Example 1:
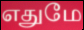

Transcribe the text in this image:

எதுமே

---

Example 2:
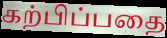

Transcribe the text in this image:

கற்பிப்பதை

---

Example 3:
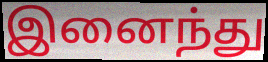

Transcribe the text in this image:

இனைந்து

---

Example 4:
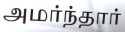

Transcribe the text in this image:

அமர்ந்தார்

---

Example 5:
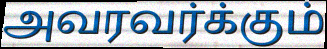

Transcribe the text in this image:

அவரவர்க்கும்